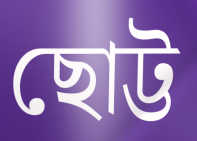
ছোট্ট